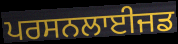
ਪਰਸਨਲਾਈਜਡ